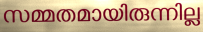
സമ്മതമായിരുന്നില്ല